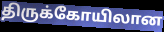
திருக்கோயிலான